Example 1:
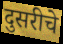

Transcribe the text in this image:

दुसरीचे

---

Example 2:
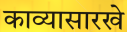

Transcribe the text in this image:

काव्यासारखे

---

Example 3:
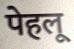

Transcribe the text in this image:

पेहलू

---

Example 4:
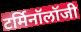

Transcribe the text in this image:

टर्मिनॉलॉजी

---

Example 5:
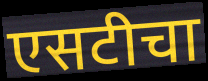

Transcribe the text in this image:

एसटीचा